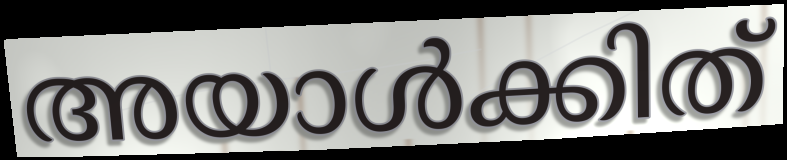
അയാൾക്കിത്